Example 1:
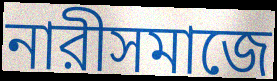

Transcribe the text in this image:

নারীসমাজে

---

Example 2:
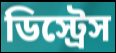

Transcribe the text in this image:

ডিস্ট্রেস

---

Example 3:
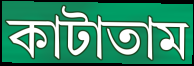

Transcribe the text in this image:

কাটাতাম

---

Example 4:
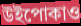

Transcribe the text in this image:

উইপোকাও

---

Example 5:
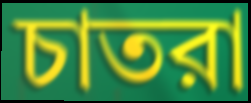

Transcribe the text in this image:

চাতরা